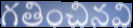
గతించినవి